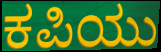
ಕಪಿಯು